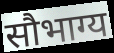
सौभाग्य